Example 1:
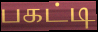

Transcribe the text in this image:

பகட்டி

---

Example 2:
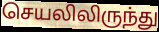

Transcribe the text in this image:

செயலிலிருந்து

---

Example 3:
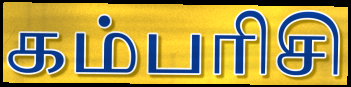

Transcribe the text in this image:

கம்பரிசி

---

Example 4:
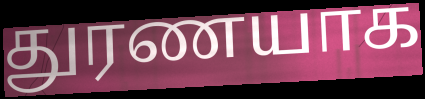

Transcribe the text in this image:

துரணயாக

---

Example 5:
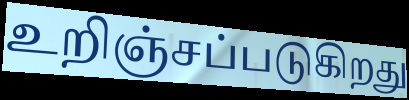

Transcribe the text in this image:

உறிஞ்சப்படுகிறது